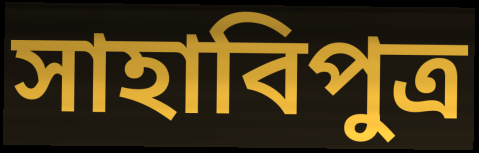
সাহাবিপুত্র